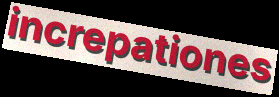
increpationes